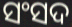
ସଂସଦ